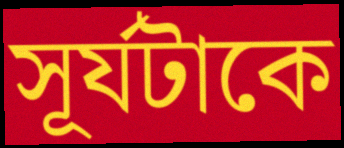
সূর্যটাকে